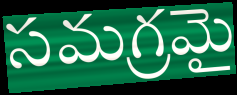
సమగ్రమై